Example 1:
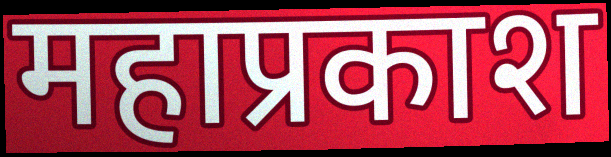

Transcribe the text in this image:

महाप्रकाश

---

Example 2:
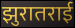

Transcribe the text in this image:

झुरातराई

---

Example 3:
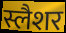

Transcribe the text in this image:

स्लैशर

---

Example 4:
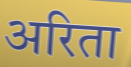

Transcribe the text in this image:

अरिता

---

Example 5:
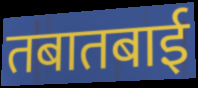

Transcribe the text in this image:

तबातबाई